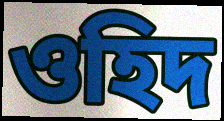
ওহিদ